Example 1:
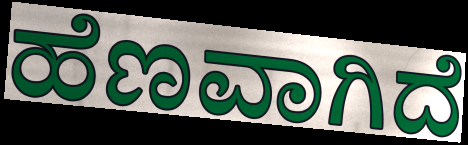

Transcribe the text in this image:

ಹೆಣವಾಗಿದೆ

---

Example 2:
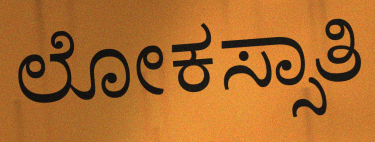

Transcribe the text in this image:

ಲೋಕಸ್ಸಾತಿ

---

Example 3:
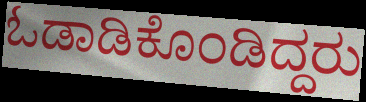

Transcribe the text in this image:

ಓಡಾಡಿಕೊಂಡಿದ್ದರು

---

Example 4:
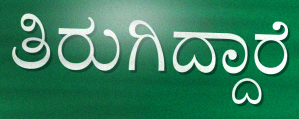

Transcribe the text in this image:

ತಿರುಗಿದ್ದಾರೆ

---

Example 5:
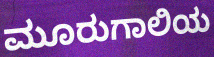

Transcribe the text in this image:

ಮೂರುಗಾಲಿಯ